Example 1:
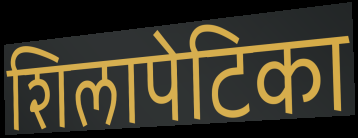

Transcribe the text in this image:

शिलापेटिका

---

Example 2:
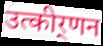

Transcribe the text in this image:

उत्कीर्णन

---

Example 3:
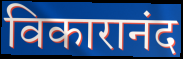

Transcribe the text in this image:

विकारानंद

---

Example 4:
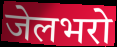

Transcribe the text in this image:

जेलभरो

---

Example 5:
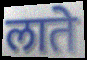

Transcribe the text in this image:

लाते